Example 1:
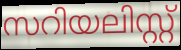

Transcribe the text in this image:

സറിയലിസ്റ്റ്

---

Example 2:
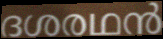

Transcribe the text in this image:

ദശരഥൻ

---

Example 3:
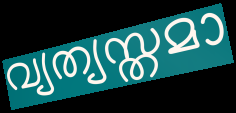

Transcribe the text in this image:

വ്യത്യസ്തമാ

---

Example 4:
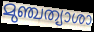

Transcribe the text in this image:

മുഞ്ചത്യാശാ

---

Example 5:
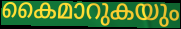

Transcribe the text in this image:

കൈമാറുകയും